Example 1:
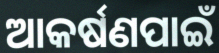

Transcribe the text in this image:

ଆକର୍ଷଣପାଇଁ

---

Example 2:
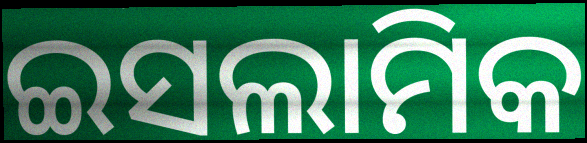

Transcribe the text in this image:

ଇସଲାମିକ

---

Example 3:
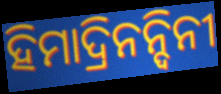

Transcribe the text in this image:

ହିମାଦ୍ରିନନ୍ଦିନୀ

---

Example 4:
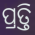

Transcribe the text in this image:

ପ୍ରତ୍ତି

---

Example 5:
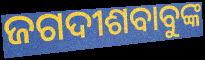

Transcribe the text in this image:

ଜଗଦୀଶବାବୁଙ୍କ